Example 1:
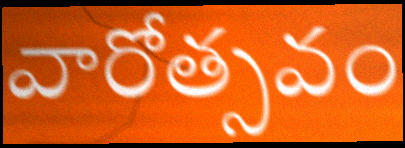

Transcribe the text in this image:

వారోత్సవం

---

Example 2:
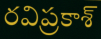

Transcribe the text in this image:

రవిప్రకాశ్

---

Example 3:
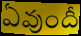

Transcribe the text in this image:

ఏవుందీ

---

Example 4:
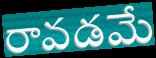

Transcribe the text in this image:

రావడమే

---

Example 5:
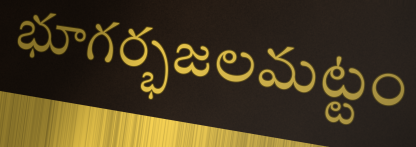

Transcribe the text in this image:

భూగర్భజలమట్టం